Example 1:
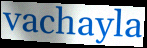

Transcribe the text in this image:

vachayla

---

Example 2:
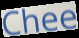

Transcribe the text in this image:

Chee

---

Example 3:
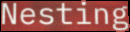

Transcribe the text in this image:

Nesting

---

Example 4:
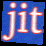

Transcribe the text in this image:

jit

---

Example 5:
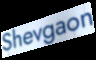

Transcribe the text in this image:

Shevgaon